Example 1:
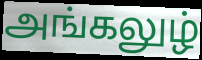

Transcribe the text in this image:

அங்கலுழ்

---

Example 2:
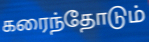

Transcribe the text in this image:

கரைந்தோடும்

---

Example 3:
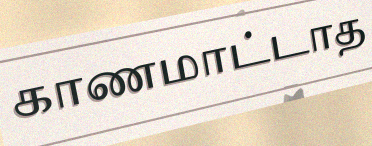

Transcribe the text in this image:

காணமாட்டாத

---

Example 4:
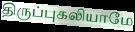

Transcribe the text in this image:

திருப்புகலியாமே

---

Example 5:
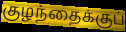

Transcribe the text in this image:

குழந்தைக்குப்